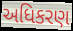
અધિકરણ